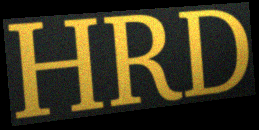
HRD